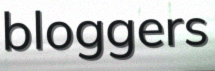
bloggers